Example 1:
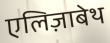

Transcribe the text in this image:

एलिज़ाबेथ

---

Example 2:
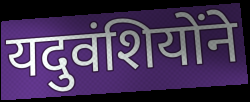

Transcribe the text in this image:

यदुवंशियोंने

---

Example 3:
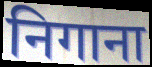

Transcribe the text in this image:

निगाना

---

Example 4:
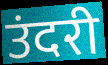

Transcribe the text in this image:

उंदरी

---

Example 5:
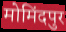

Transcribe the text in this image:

मोमिंदपुर